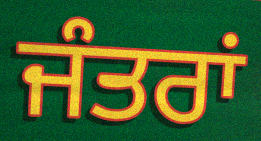
ਜੰਤਰਾਂ